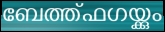
ബേത്ത്ഫഗയ്ക്കും